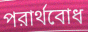
পরার্থবোধ